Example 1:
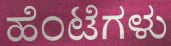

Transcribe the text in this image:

ಹೆಂಟೆಗಳು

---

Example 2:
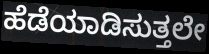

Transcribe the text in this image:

ಹೆಡೆಯಾಡಿಸುತ್ತಲೇ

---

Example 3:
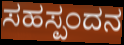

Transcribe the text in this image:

ಸಹಸ್ಪಂದನ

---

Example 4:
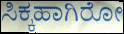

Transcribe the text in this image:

ಸಿಕ್ಕಹಾಗಿರೋ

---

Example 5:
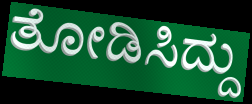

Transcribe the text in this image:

ತೋಡಿಸಿದ್ದು